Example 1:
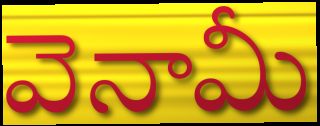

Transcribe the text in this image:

వెనామీ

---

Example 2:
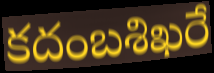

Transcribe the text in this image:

కదంబశిఖరే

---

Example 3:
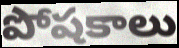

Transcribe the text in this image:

పోషకాలు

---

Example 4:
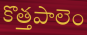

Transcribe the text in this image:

కొత్తపాలెం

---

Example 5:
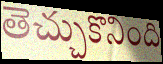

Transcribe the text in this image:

తెచ్చుకొనింది